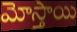
మోస్తాయి